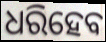
ଧରିହେବ